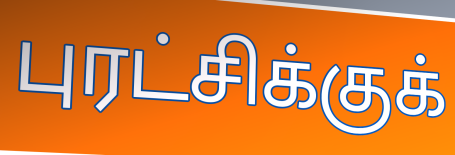
புரட்சிக்குக்